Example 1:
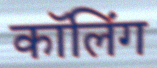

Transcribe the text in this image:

कॉलिंग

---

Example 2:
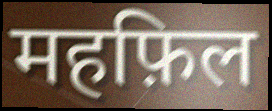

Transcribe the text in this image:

महफ़िल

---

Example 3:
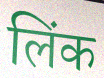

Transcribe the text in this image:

लिंक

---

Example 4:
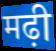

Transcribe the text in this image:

मढ़ी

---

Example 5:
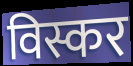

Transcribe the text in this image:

विस्कर